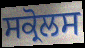
ਸਕ੍ਰੋਲਸ